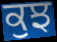
ਕੁਝ